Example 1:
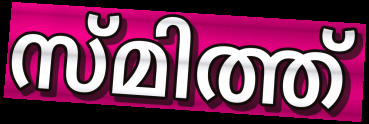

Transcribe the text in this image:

സ്മിത്ത്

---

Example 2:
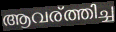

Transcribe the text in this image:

ആവര്ത്തിച്ച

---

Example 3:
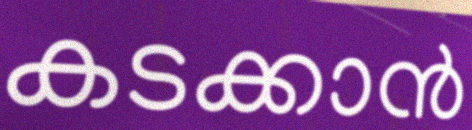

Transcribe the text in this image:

കടക്കാൻ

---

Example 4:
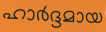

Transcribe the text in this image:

ഹാർദ്ദമായ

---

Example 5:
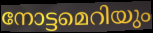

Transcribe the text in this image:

നോട്ടമെറിയും